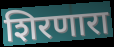
शिरणारा